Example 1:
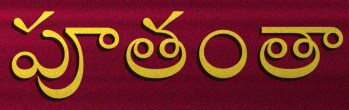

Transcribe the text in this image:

పూతంతా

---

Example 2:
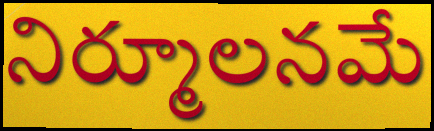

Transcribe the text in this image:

నిర్మూలనమే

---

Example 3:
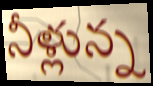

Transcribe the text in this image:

నీళ్లున్న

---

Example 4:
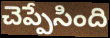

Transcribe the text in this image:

చెప్పేసింది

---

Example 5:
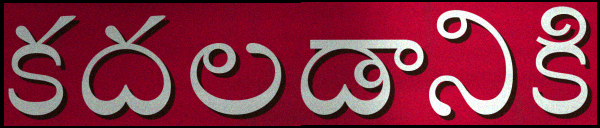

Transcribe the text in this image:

కదలడానికి